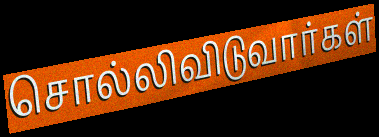
சொல்லிவிடுவார்கள்